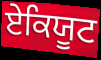
ਏਕਿਯੂਟ